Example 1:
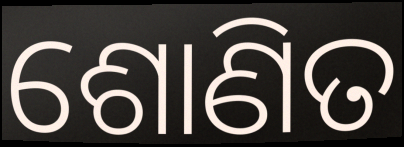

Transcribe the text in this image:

ଶୋଣିତ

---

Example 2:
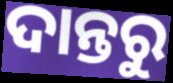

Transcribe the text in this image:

ଦାନ୍ତରୁ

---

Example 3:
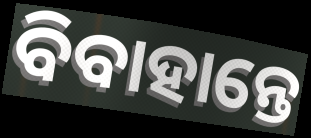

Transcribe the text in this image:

ବିବାହାନ୍ତେ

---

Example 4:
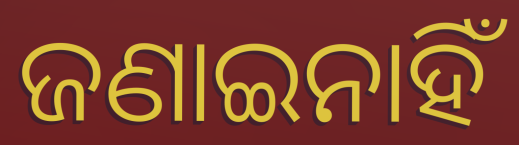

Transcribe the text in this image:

ଜଣାଇନାହିଁ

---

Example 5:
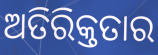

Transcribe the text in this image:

ଅତିରିକ୍ତତାର